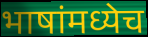
भाषांमध्येच